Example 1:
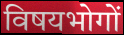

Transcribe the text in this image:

विषयभोगों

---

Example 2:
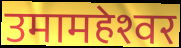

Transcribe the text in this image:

उमामहेश्वर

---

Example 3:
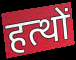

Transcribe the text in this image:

हत्थों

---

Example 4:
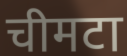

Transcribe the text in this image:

चीमटा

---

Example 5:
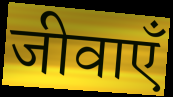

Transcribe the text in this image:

जीवाएँ